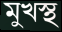
মুখস্থ